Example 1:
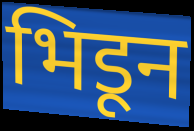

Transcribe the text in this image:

भिडून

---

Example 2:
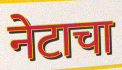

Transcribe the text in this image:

नेटाचा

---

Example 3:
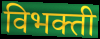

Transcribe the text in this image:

विभक्ती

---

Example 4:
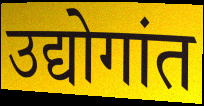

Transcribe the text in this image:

उद्योगांत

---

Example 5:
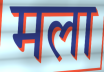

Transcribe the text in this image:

मला